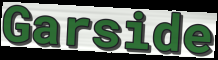
Garside